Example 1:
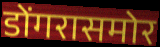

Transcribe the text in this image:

डोंगरासमोर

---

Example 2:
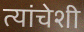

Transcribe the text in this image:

त्यांचेशी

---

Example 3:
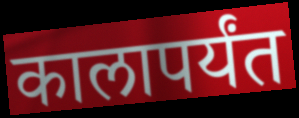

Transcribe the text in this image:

कालापर्यंत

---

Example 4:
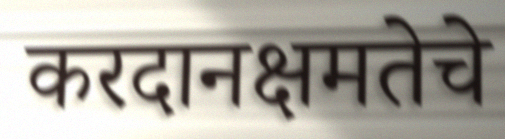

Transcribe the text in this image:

करदानक्षमतेचे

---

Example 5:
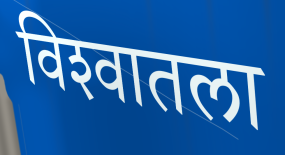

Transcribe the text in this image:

विश्‍वातला